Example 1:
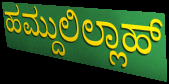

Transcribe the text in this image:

ಹಮ್ದುಲಿಲ್ಲಾಹ್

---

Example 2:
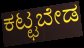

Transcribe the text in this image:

ಕಟ್ಟಬೇಡ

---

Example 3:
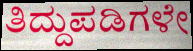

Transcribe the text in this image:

ತಿದ್ದುಪಡಿಗಳೇ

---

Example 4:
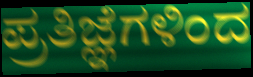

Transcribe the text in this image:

ಪ್ರತಿಜ್ಞೆಗಳಿಂದ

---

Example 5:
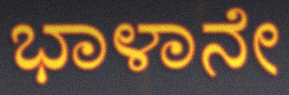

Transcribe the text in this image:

ಭಾಳಾನೇ